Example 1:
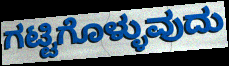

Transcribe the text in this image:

ಗಟ್ಟಿಗೊಳ್ಳುವುದು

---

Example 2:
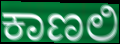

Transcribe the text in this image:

ಕಾಣಲಿ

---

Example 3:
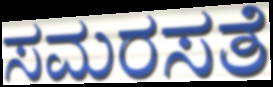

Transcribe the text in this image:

ಸಮರಸತೆ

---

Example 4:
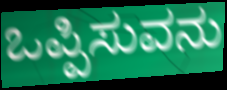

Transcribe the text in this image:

ಒಪ್ಪಿಸುವನು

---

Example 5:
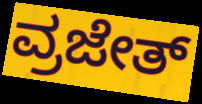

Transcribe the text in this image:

ವ್ರಜೇತ್